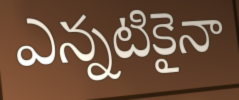
ఎన్నటికైనా